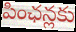
పింఛన్లకు